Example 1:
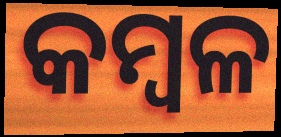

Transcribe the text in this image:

କମ୍ବଳ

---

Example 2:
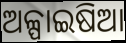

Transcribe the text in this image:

ଅଳ୍ପାଇଷିଆ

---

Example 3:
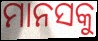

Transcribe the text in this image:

ମାନସକୁ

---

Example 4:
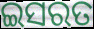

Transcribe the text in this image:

ଇସରତ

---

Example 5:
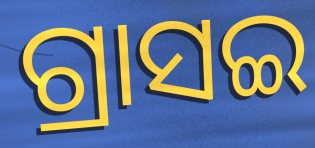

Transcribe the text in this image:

ଗ୍ରାସଇ